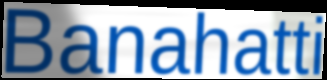
Banahatti